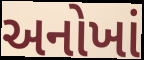
અનોખાં